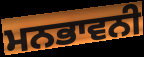
ਮਨਭਾਵਨੀ